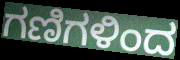
ಗಣಿಗಳಿಂದ